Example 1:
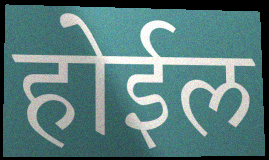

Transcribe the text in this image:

होईल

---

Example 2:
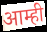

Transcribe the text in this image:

आम्ही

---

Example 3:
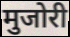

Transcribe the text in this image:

मुजोरी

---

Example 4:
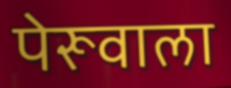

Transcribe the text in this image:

पेरूवाला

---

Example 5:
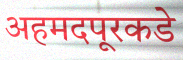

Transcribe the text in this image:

अहमदपूरकडे